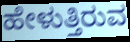
ಹೇಳುತ್ತಿರುವ